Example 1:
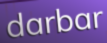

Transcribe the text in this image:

darbar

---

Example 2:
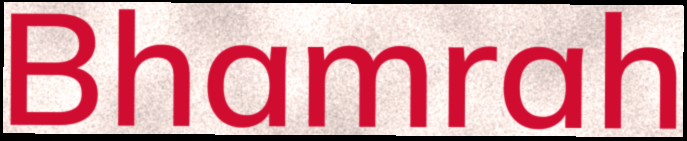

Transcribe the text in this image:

Bhamrah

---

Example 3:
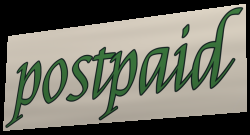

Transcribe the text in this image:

postpaid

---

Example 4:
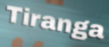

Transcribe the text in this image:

Tiranga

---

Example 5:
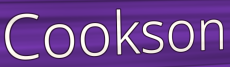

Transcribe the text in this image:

Cookson